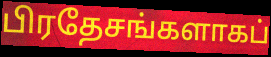
பிரதேசங்களாகப்